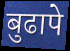
बुढापे